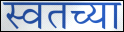
स्वतच्या